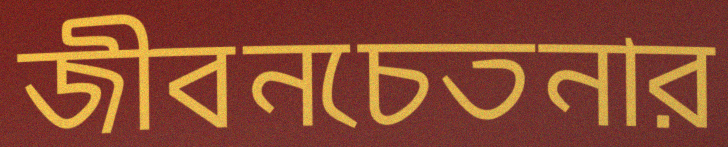
জীবনচেতনার